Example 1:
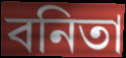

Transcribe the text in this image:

বনিতা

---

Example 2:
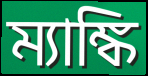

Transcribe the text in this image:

ম্যাঙ্কি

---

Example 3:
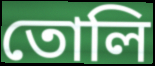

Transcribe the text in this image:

তোলি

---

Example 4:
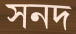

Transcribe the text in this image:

সনদ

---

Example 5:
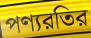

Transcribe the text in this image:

পণ্যরতির